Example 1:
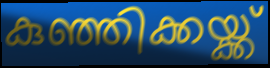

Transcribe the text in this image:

കുഞ്ഞിക്കയ്ക്ക്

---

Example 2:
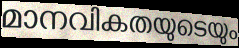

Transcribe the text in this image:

മാനവികതയുടെയും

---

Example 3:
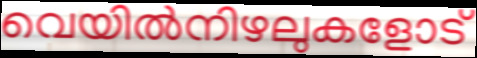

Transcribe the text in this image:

വെയിൽനിഴലുകളോട്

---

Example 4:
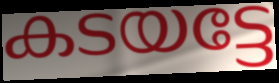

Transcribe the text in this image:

കടയട്ടേ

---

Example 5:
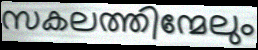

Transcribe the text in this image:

സകലത്തിന്മേലും